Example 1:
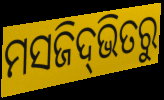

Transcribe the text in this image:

ମସଜିଦ୍‌ଭିତରୁ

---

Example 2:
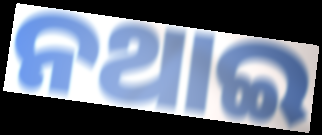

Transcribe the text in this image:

ନଥାଇ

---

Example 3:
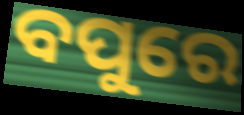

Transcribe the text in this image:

ବପୁରେ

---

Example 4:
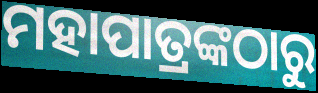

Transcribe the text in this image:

ମହାପାତ୍ରଙ୍କଠାରୁ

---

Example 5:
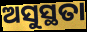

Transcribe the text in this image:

ଅସୁସ୍ଥତା